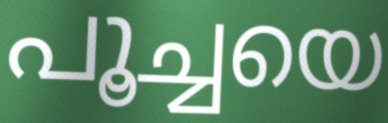
പൂച്ചയെ